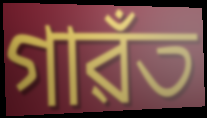
গাৱঁত